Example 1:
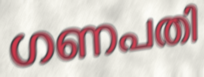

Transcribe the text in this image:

ഗണപതി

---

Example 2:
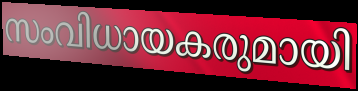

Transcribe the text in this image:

സംവിധായകരുമായി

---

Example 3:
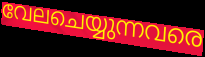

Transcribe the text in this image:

വേലചെയ്യുന്നവരെ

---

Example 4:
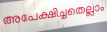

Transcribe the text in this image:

അപേക്ഷിച്ചതെല്ലാം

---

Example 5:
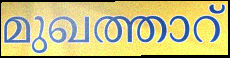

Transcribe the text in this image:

മുഖത്താറ്